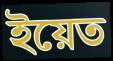
ইয়েত